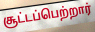
சூட்டப்பெற்றார்